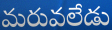
మరువలేడు